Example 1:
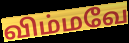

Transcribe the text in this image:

விம்மவே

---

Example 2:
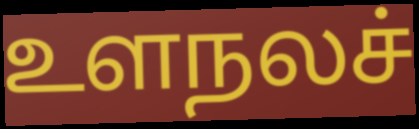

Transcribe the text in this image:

உளநலச்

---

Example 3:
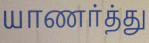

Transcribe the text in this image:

யாணர்த்து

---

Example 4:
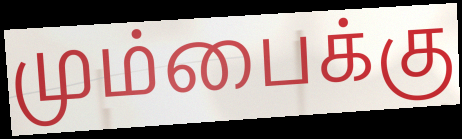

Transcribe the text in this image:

மும்பைக்கு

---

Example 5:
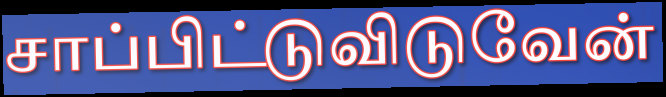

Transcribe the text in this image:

சாப்பிட்டுவிடுவேன்